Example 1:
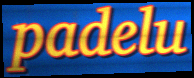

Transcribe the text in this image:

padelu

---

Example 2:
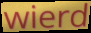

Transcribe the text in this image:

wierd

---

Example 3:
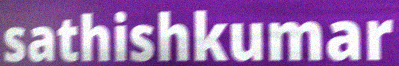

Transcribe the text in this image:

sathishkumar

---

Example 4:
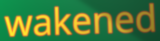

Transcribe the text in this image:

wakened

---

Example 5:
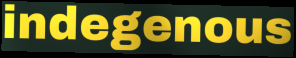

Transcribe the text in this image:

indegenous